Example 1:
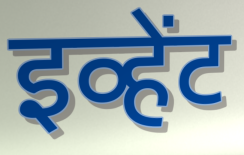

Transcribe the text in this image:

इव्हेंट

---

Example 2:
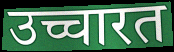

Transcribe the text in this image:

उच्चारत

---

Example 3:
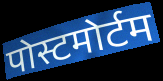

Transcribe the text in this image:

पोस्टमोर्टम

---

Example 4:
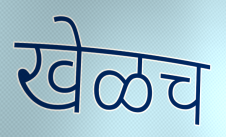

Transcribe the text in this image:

खेळच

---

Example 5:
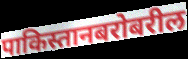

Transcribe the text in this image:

पाकिस्तानबरोबरील